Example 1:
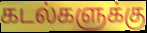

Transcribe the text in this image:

கடல்களுக்கு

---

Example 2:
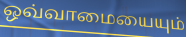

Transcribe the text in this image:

ஒவ்வாமையையும்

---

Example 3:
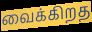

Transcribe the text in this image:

வைக்கிறத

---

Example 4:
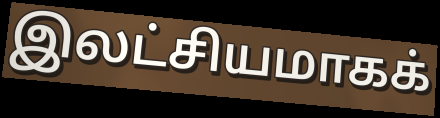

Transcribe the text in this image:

இலட்சியமாகக்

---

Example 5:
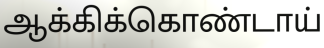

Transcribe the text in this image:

ஆக்கிக்கொண்டாய்